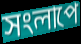
সংলাপে